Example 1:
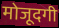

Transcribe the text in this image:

मोजूदगी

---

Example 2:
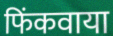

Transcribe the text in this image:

फिंकवाया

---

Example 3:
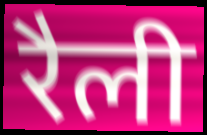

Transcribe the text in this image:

रैली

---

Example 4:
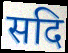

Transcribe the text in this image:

सदि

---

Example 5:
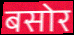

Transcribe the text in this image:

बसोर